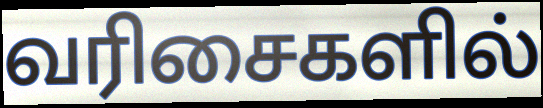
வரிசைகளில்